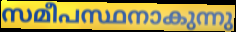
സമീപസ്ഥനാകുന്നു